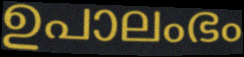
ഉപാലംഭം